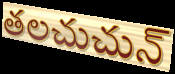
తలచుచున్